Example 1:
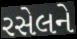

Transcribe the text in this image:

રસેલને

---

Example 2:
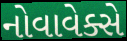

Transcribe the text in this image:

નોવાવેક્સે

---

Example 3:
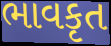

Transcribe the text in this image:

ભાવકૃત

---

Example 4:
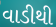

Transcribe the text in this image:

વાડીથી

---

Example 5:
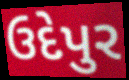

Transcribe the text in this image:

ઉદેપુર